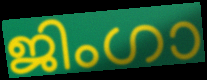
ജിംഗാ